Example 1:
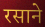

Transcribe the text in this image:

रसाने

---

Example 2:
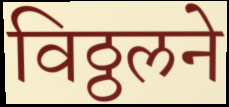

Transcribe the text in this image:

विठ्ठलने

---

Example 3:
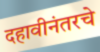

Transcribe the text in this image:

दहावीनंतरचे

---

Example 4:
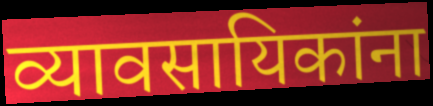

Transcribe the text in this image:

व्यावसायिकांना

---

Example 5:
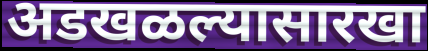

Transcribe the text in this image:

अडखळल्यासारखा